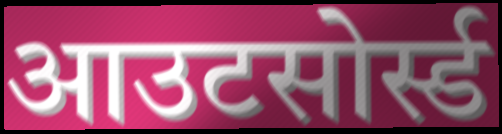
आउटसोर्स्ड